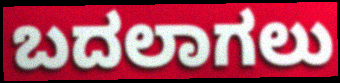
ಬದಲಾಗಲು